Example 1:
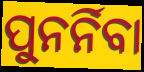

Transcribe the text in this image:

ପୁନର୍ନିବା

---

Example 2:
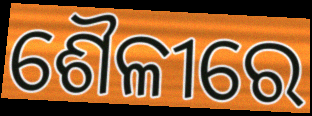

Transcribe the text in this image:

ଶୈଳୀରେ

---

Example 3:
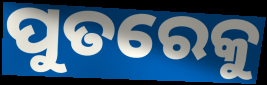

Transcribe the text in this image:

ପୁତରେକୁ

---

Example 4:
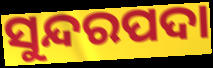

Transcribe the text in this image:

ସୁନ୍ଦରପଦା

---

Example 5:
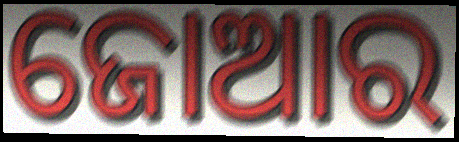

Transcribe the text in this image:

ଜୋଆର